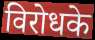
विरोधके